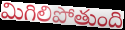
మిగిలిపోతుంది